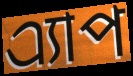
এ্যাপ